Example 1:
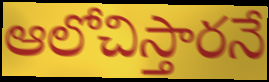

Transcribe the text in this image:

ఆలోచిస్తారనే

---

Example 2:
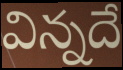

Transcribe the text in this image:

విన్నదే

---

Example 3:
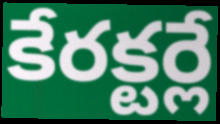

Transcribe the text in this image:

కేరక్టర్లే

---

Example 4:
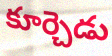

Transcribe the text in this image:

కూర్చెడు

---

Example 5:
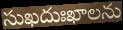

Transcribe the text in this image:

సుఖదుఃఖాలను